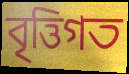
বৃত্তিগত